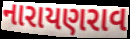
નારાયણરાવ